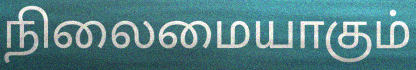
நிலைமையாகும்